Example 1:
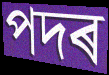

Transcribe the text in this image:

পদৰ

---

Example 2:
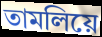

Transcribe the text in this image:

তামলিয়ে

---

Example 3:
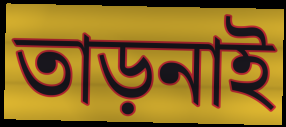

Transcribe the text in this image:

তাড়নাই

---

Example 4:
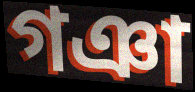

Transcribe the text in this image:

গঞা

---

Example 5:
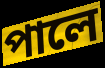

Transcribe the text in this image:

পালে